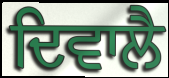
ਦਿਵਾਲੈ